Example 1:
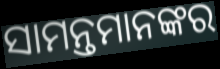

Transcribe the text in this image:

ସାମନ୍ତମାନଙ୍କର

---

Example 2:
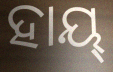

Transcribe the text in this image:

ହାୟ୍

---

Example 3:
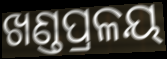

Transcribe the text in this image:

ଖଣ୍ଡପ୍ରଳୟ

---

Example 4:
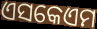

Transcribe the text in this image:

ଏସକେଏମ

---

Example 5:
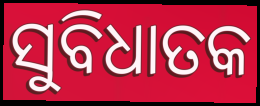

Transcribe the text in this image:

ସୁବିଧାତକ